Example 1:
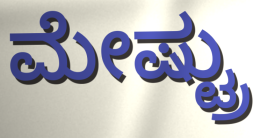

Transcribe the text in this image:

ಮೇಷ್ಟ್ರು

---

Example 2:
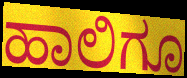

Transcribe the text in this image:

ಹಾಲಿಗೂ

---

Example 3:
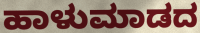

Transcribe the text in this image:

ಹಾಳುಮಾಡದ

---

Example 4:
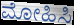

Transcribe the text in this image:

ಮೋಹಿಸಿ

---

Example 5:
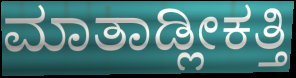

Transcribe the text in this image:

ಮಾತಾಡ್ಲೀಕತ್ತಿ